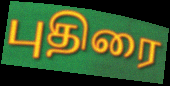
புதிரை